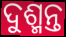
ଦୁଶ୍ମନ୍ତ